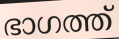
ഭാഗത്ത്